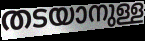
തടയാനുള്ള